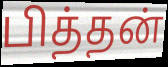
பித்தன்